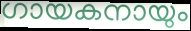
ഗായകനായും